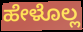
ಹೇಳೊಲ್ಲ